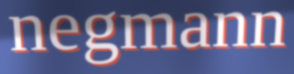
negmann